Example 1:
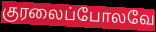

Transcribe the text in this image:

குரலைப்போலவே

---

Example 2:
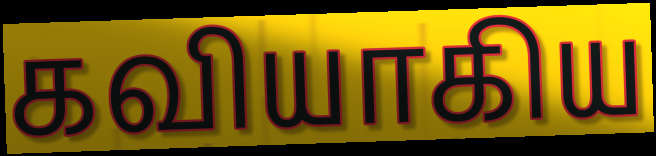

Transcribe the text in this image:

கவியாகிய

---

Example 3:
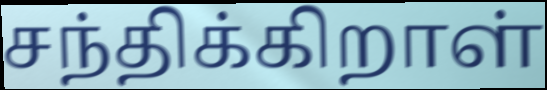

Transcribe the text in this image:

சந்திக்கிறாள்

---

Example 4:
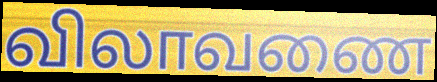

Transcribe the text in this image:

விலாவணை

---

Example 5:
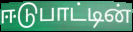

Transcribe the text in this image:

ஈடுபாட்டின்